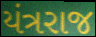
યંત્રરાજ